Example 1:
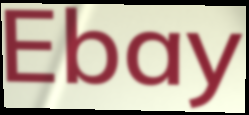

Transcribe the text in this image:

Ebay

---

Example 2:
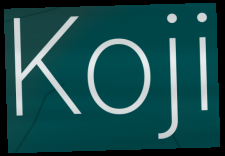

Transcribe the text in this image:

Koji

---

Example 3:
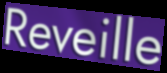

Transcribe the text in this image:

Reveille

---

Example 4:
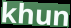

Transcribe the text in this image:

khun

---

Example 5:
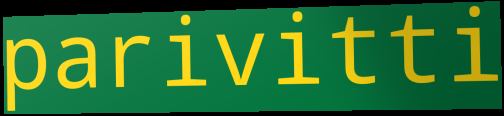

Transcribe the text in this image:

parivitti